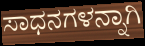
ಸಾಧನಗಳನ್ನಾಗಿ